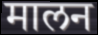
मालन